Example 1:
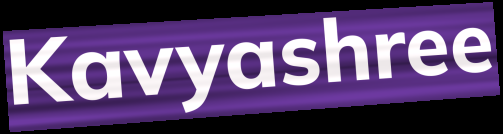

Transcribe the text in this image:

Kavyashree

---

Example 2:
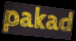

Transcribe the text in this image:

pakad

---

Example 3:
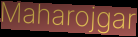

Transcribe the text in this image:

Maharojgar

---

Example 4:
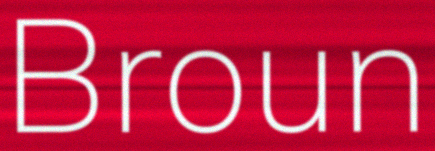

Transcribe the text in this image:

Broun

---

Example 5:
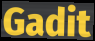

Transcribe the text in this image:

Gadit